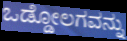
ಒಡ್ಡೋಲಗವನ್ನು